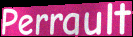
Perrault